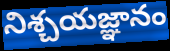
నిశ్చయజ్ఞానం